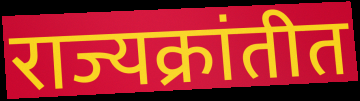
राज्यक्रांतीत